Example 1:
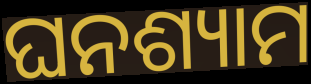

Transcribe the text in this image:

ଘନଶ୍ୟାମ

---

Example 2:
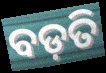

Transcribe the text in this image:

ବଡ଼ତି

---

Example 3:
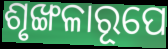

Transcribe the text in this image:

ଶୃଙ୍ଖଳାରୂପେ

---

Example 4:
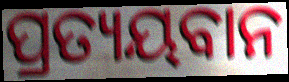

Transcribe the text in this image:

ପ୍ରତ୍ୟୟବାନ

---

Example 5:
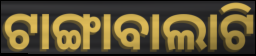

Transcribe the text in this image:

ଟାଙ୍ଗାବାଲାଟି